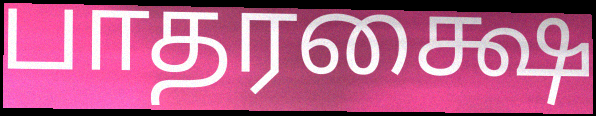
பாதரக்ஷை